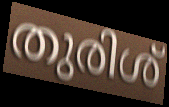
തുരിശ്